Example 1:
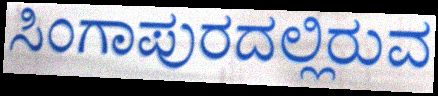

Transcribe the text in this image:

ಸಿಂಗಾಪುರದಲ್ಲಿರುವ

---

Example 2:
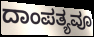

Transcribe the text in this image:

ದಾಂಪತ್ಯವೂ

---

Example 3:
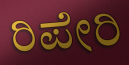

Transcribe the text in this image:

ರಿಪೇರಿ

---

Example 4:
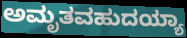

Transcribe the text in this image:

ಅಮೃತವಹುದಯ್ಯಾ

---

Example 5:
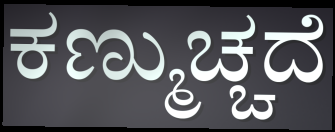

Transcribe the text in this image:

ಕಣ್ಮುಚ್ಚದೆ